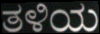
ತಳಿಯ